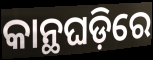
କାନ୍ଥଘଡ଼ିରେ